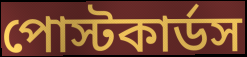
পোস্টকার্ডস